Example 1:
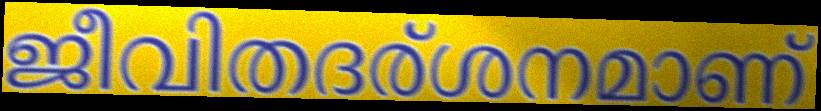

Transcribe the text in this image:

ജീവിതദര്ശനമാണ്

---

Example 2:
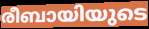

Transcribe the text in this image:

രീബായിയുടെ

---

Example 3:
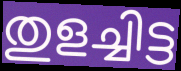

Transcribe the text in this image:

തുളച്ചിട്ട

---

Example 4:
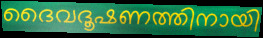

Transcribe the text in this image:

ദൈവദൂഷണത്തിനായി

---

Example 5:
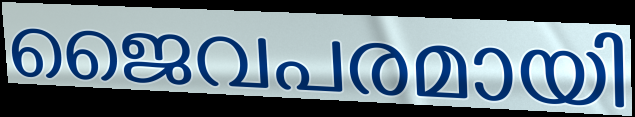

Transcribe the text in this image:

ജൈവപരമായി